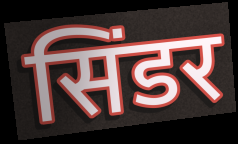
सिंडर